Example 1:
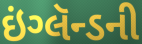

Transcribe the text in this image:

ઇંગ્લૅન્ડની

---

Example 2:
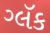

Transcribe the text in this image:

ગ્લૅક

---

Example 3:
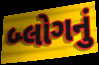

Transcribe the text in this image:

બ્લોગનું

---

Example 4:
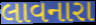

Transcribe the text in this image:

લાવનારા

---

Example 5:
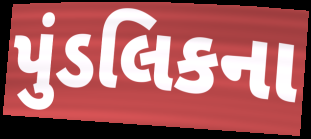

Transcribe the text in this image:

પુંડલિકના